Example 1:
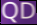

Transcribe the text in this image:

QD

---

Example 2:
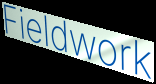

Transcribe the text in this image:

Fieldwork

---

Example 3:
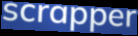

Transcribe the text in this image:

scrapper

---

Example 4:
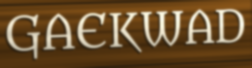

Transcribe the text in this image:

GAEKWAD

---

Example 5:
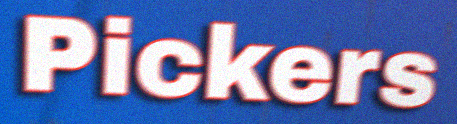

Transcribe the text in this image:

Pickers